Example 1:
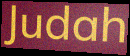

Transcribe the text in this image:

Judah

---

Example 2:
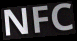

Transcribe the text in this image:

NFC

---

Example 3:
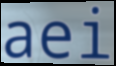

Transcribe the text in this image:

aei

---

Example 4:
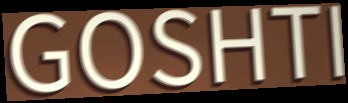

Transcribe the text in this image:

GOSHTI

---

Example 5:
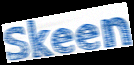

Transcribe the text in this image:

Skeen